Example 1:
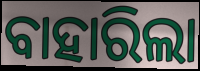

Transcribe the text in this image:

ବାହାରିଲା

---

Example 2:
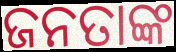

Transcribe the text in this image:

ଜନତାଙ୍କ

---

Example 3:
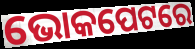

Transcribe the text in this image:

ଭୋକପେଟରେ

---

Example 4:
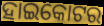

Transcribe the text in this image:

ହାଇକୋଟର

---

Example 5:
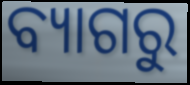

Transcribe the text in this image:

ବ୍ୟାଗରୁ